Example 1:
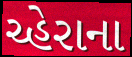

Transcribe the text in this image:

ચ્હેરાના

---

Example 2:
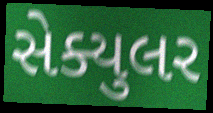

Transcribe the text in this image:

સેક્યુલર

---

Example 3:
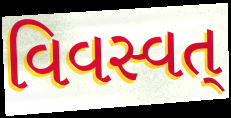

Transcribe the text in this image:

વિવસ્વત્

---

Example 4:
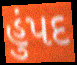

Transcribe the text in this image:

હુંપદ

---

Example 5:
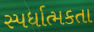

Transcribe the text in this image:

સ્પર્ધાત્મકતા